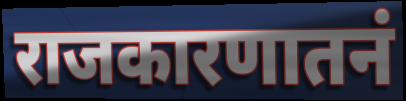
राजकारणातनं